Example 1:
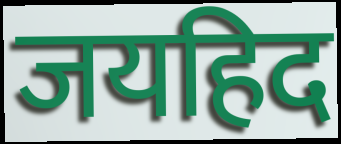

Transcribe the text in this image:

जयहिद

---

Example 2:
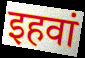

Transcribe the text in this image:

इहवां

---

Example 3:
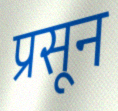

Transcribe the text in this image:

प्रसून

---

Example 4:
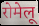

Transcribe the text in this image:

रोमेलू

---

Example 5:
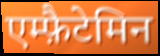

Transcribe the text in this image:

एम्फ़ैटेमिन